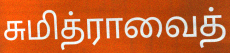
சுமித்ராவைத்